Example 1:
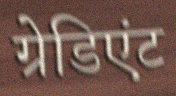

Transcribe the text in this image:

ग्रेडिएंट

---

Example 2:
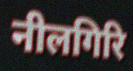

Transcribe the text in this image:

नीलगिरि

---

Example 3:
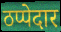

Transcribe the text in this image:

ठप्पेदार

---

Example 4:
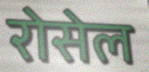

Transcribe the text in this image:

रोसेल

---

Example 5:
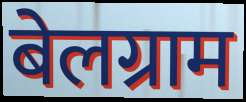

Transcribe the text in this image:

बेलग्राम